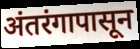
अंतरंगापासून